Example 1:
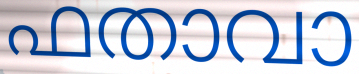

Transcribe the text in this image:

ഫതാവാ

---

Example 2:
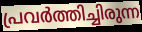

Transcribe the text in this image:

പ്രവർത്തിച്ചിരുന്ന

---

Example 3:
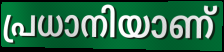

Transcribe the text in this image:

പ്രധാനിയാണ്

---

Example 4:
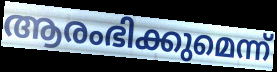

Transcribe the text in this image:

ആരംഭിക്കുമെന്ന്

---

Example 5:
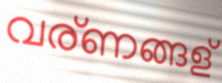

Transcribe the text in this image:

വര്ണങ്ങള്